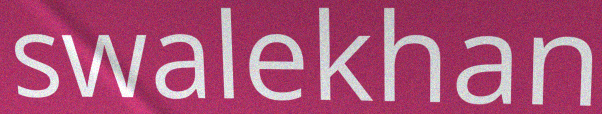
swalekhan